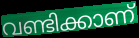
വണ്ടിക്കാണ്